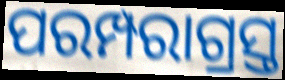
ପରମ୍ପରାଗ୍ରସ୍ତ